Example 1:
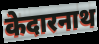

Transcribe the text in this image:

केदारनाथ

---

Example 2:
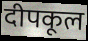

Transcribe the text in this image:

दीपकूल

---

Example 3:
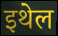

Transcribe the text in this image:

इथेल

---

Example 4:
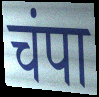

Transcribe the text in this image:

चंपा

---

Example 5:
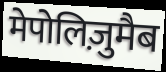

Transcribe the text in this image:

मेपोलिज़ुमैब